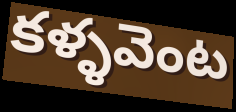
కళ్ళవెంట